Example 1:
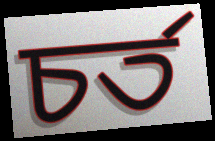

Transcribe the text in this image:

চৰ্ত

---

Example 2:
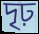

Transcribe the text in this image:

দৃঢ়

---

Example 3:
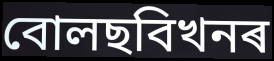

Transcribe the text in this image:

বোলছবিখনৰ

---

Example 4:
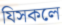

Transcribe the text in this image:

যিসকলে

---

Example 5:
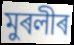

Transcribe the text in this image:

মুৰলীৰ